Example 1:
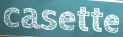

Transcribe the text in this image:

casette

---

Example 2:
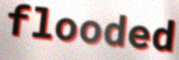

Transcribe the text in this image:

flooded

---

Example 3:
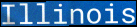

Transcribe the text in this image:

Illinois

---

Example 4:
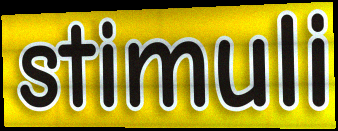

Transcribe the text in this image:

stimuli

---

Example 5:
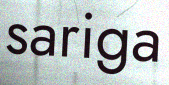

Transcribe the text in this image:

sariga